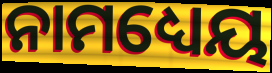
ନାମଧ୍ୟେୟ